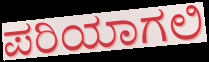
ಪರಿಯಾಗಲಿ